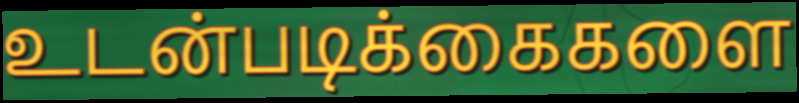
உடன்படிக்கைகளை